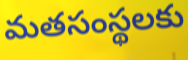
మతసంస్థలకు